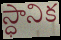
స్ధానిక